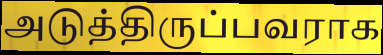
அடுத்திருப்பவராக